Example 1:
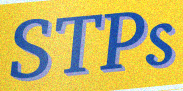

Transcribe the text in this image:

STPs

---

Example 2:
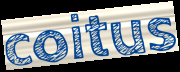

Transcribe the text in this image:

coitus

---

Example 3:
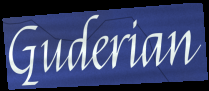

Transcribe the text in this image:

Guderian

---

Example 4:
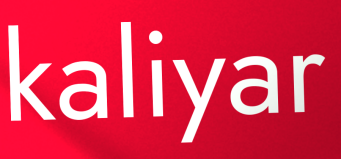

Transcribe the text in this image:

kaliyar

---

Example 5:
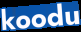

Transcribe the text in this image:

koodu